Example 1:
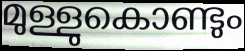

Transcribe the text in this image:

മുള്ളുകൊണ്ടും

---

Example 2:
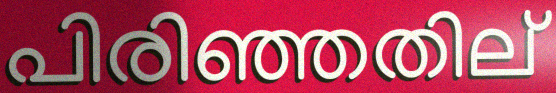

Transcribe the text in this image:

പിരിഞ്ഞതില്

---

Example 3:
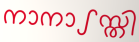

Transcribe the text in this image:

നാനാഽസ്തി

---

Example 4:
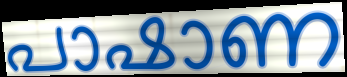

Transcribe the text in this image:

പാഷാണ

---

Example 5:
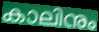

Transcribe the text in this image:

കാലിനും